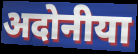
अदोनीया